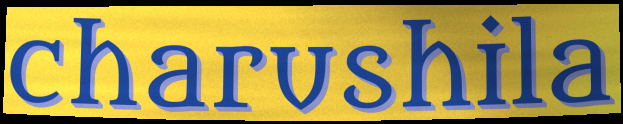
charushila